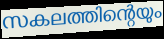
സകലത്തിന്റെയും